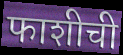
फाशीची